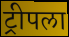
ट्रीपला